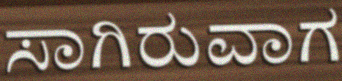
ಸಾಗಿರುವಾಗ